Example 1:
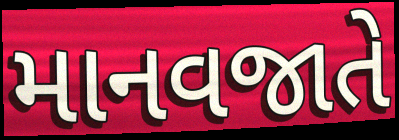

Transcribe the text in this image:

માનવજાતે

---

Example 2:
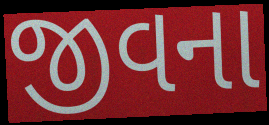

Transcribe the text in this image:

જીવના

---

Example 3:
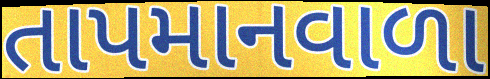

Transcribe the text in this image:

તાપમાનવાળા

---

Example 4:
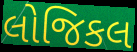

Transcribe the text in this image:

લોજિકલ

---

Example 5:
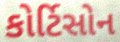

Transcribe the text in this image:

કોર્ટિસોન